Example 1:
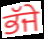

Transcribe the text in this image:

ਭੱਜੇ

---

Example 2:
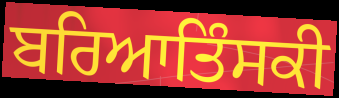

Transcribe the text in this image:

ਬਰਿਆਤਿੰਸਕੀ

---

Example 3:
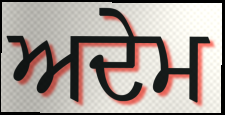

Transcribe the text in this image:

ਅਦੇਮ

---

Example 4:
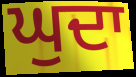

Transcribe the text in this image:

ਘੁਦਾ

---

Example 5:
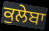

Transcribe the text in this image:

ਕੁਲੇਬਾ